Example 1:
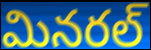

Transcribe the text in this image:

మినరల్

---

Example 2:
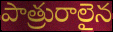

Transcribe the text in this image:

పాత్రురాలైన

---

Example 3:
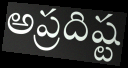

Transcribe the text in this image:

అప్రదిష్ట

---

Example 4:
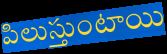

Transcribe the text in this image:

పిలుస్తుంటాయి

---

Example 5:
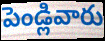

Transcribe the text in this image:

పెండ్లివారు